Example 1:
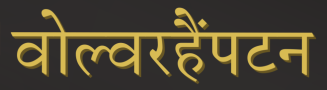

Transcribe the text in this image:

वोल्वरहैंपटन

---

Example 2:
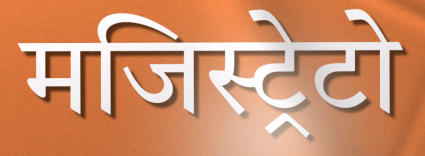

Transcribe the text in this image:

मजिस्ट्रेटो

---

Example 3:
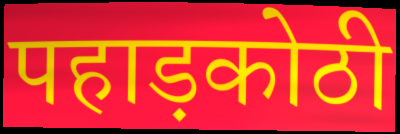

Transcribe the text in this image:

पहाड़कोठी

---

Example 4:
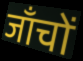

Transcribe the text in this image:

जाँचों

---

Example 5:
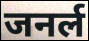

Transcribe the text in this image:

जनर्ल